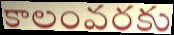
కాలంవరకు